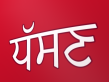
ਧੱਸਣ